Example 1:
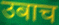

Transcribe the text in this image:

उबाच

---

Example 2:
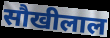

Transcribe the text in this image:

सौखीलाल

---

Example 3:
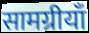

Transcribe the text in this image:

सामग्रीयाँ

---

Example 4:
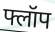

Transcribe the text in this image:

फ्लॉप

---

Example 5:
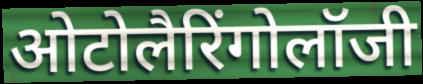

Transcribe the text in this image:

ओटोलैरिंगोलॉजी